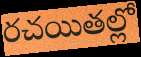
రచయితల్లో